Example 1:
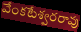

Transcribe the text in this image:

వేంకటేశ్వరరావు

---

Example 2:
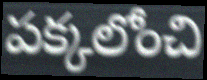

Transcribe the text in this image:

పక్కలోంచి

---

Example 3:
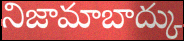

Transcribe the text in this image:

నిజామాబాద్కు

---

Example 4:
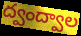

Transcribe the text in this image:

ద్వంద్వాల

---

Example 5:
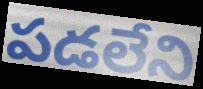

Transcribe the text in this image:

పడలేని